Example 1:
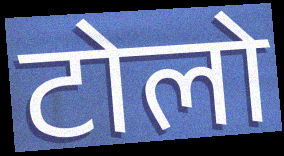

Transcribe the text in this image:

टोलो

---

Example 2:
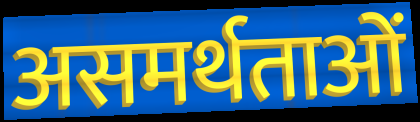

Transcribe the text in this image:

असमर्थताओं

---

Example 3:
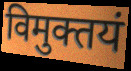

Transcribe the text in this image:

विमुक्तयं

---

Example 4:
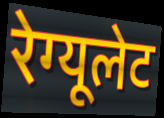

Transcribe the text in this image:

रेग्यूलेट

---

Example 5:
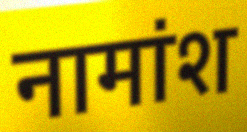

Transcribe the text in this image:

नामांश